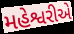
મહેશ્વરીએ